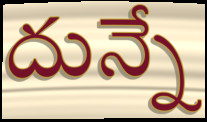
దున్నే